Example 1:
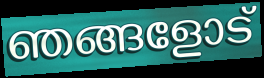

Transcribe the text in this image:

ഞങ്ങളോട്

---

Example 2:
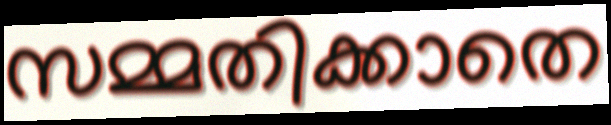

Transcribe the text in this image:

സമ്മതിക്കാതെ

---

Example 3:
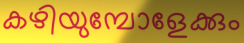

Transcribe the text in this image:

കഴിയുമ്പോളേക്കും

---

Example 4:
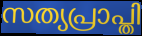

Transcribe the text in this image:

സത്യപ്രാപ്തി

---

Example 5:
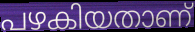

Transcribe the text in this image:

പഴകിയതാണ്